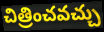
చిత్రించవచ్చు